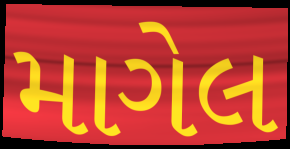
માગેલ